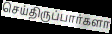
செய்திருப்பார்களா